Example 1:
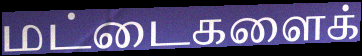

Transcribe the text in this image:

மட்டைகளைக்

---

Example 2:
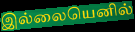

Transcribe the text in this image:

இல்லையெனில்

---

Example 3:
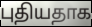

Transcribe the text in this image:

புதியதாக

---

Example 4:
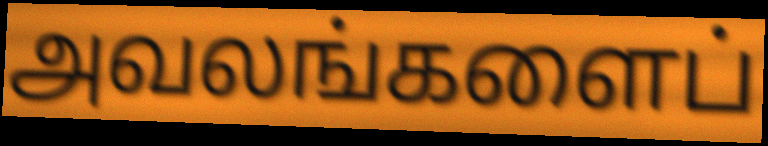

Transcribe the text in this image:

அவலங்களைப்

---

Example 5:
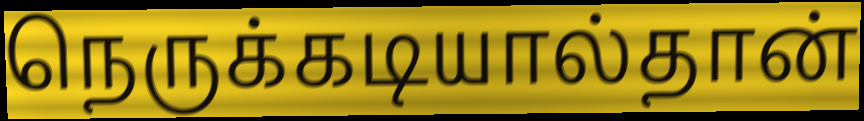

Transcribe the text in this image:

நெருக்கடியால்தான்